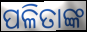
ପଳିତାଙ୍କ